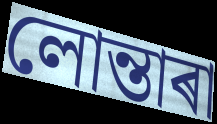
লোন্তাৰা